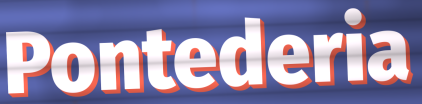
Pontederia